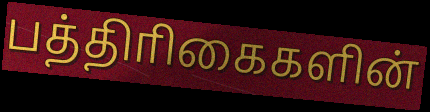
பத்திரிகைகளின்